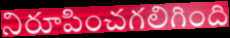
నిరూపించగలిగింది